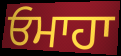
ਓਮਾਹਾ